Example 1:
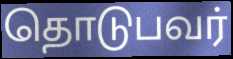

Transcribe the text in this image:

தொடுபவர்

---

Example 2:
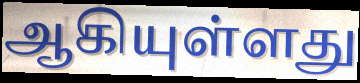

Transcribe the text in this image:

ஆகியுள்ளது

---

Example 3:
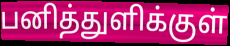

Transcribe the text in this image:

பனித்துளிக்குள்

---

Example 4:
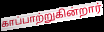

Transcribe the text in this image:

காப்பாற்றுகின்றார்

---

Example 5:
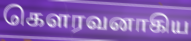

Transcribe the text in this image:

கௌரவனாகிய